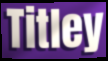
Titley